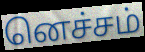
னெச்சம்